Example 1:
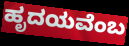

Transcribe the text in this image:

ಹೃದಯವೆಂಬ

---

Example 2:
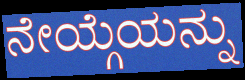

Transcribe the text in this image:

ನೇಯ್ಗೆಯನ್ನು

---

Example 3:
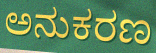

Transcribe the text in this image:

ಅನುಕರಣ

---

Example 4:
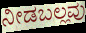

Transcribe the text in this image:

ನೀಡಬಲ್ಲವು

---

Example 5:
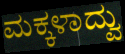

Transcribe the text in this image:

ಮಕ್ಕಳಾದ್ವು